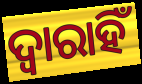
ଦ୍ୱାରାହିଁ